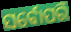
ସର୍ବୋପରି